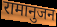
रामानुजन